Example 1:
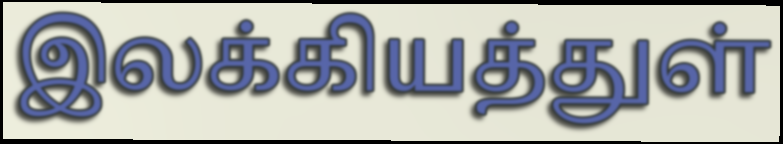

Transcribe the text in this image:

இலக்கியத்துள்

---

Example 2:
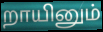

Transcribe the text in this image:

றாயினும்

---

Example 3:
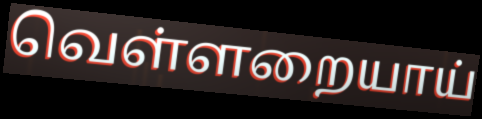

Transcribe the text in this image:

வெள்ளறையாய்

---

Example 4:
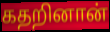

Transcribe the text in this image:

கதறினான்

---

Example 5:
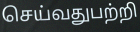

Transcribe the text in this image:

செய்வதுபற்றி